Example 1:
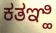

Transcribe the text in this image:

ಕತಞ್ಹಿ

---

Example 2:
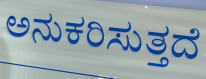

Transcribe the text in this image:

ಅನುಕರಿಸುತ್ತದೆ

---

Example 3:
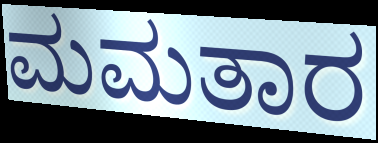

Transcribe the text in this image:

ಮಮತಾರ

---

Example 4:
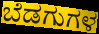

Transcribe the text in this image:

ಬೆಡಗುಗಳ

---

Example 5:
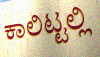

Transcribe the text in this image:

ಕಾಲಿಟ್ಟಲ್ಲಿ